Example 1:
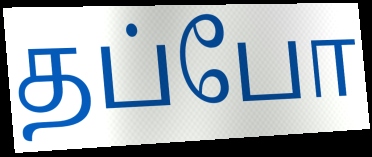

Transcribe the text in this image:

தப்போ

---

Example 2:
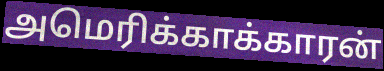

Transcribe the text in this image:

அமெரிக்காக்காரன்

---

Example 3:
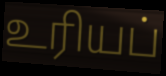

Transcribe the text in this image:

உரியப்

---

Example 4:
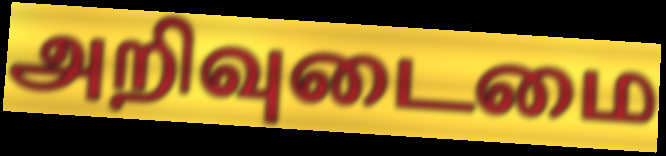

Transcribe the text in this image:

அறிவுடைமை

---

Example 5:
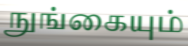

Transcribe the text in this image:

நுங்கையும்